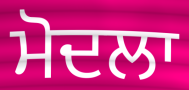
ਮੋਦਲਾ